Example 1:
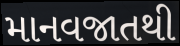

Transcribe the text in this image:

માનવજાતથી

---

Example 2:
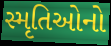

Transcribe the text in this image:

સ્મૃતિઓનો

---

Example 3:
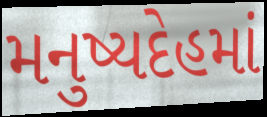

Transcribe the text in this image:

મનુષ્યદેહમાં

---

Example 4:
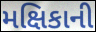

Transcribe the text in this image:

મક્ષિકાની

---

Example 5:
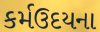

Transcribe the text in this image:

કર્મઉદયના